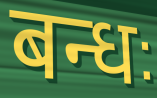
बन्धः